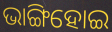
ଭାଙ୍ଗିହୋଇ